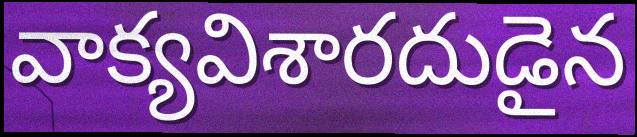
వాక్యవిశారదుడైన